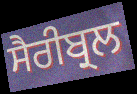
ਸੈਰੀਬ੍ਰਲ